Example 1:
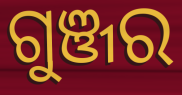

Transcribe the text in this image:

ଗୁଞ୍ଜର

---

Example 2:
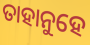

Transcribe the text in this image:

ତାହାନୁହେ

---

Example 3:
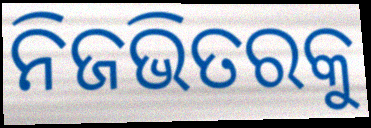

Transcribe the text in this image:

ନିଜଭିତରକୁ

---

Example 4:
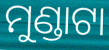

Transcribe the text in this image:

ମୁଣ୍ଡାଟା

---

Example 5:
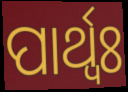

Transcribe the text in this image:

ପାର୍ଥ୍ବଃ